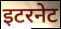
इटरनेट